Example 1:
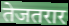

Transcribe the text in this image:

तेजतरार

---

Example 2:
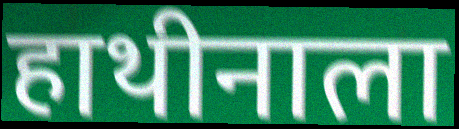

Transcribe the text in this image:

हाथीनाला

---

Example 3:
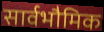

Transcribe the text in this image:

सार्वभौमिक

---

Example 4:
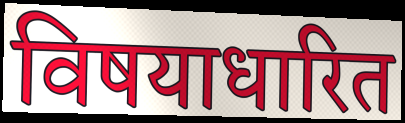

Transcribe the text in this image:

विषयाधारित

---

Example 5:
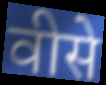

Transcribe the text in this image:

वीसे